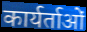
कार्यर्ताओं